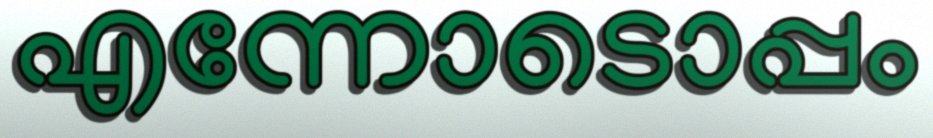
എന്നോടൊപ്പം